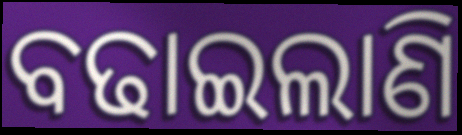
ବଢାଇଲାଣି